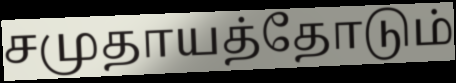
சமுதாயத்தோடும்